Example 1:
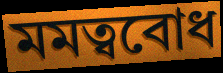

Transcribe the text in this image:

মমত্ববোধ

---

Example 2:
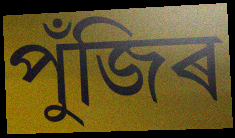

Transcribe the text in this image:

পুঁজিৰ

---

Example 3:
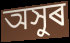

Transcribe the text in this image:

অসুৰ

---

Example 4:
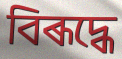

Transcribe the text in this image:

বিৰূদ্ধে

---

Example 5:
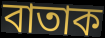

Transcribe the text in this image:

বাতাক